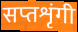
सप्तशृंगी